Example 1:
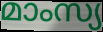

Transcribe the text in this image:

മാംസ്യ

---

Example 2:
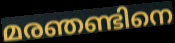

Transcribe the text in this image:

മരഞണ്ടിനെ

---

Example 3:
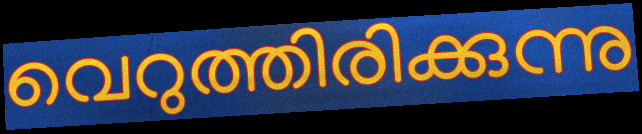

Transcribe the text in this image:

വെറുത്തിരിക്കുന്നു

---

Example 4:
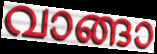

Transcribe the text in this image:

വാങ്ങാ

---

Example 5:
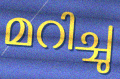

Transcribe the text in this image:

മറിച്ചു